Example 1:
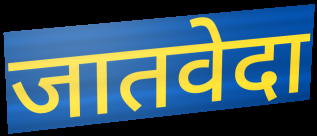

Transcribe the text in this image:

जातवेदा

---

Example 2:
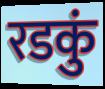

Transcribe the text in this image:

रडकुं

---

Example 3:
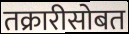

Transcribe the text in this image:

तक्रारीसोबत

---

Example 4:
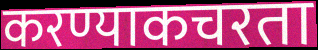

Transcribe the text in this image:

करण्याकचरता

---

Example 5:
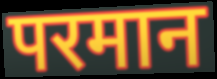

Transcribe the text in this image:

परमान